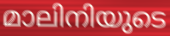
മാലിനിയുടെ